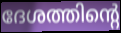
ദേശത്തിന്റെ